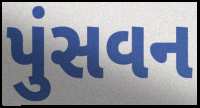
પુંસવન